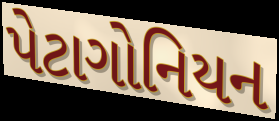
પેટાગોનિયન